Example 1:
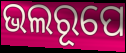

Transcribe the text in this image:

ଭଲରୂପେ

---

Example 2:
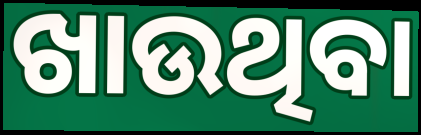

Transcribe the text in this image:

ଖାଉଥିବା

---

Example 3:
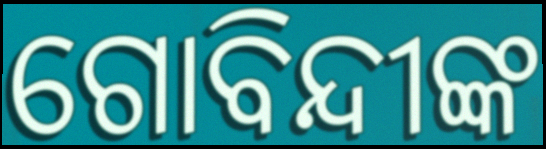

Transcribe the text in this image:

ଗୋବିନ୍ଦୀଙ୍କ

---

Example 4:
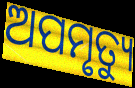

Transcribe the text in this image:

ଅପମୃତ୍ୟୁ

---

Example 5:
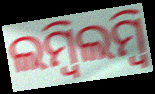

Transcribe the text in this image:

ଲମ୍ବିଲମ୍ବି